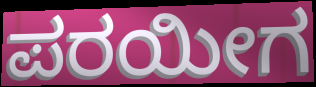
ಪರಯೀಗ